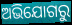
ଅଭିଯୋଗରୁ